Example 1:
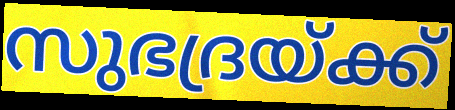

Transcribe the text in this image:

സുഭദ്രയ്ക്ക്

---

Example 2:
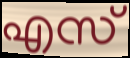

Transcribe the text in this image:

എസ്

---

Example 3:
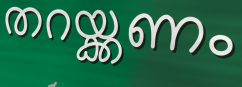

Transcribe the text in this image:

തറയ്ക്കണം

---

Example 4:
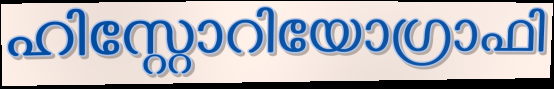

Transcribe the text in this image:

ഹിസ്റ്റോറിയോഗ്രാഫി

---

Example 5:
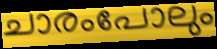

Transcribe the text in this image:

ചാരംപോലും